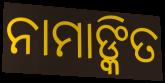
ନାମାଙ୍କିତ